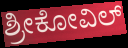
ಶ್ರೀಕೋವಿಲ್